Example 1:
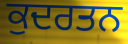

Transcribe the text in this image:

ਕੁਦਰਤਨ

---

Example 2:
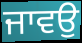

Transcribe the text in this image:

ਜਾਵਉ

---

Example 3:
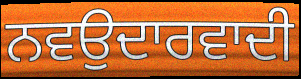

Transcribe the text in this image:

ਨਵਉਦਾਰਵਾਦੀ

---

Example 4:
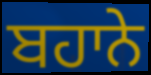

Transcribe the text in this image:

ਬਹਾਨੇ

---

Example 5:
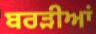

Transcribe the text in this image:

ਬਰੜੀਆਂ